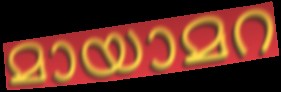
മായാമറ